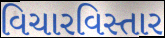
વિચારવિસ્તાર